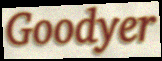
Goodyer